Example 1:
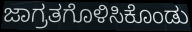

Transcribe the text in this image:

ಜಾಗ್ರತಗೊಳಿಸಿಕೊಂಡು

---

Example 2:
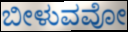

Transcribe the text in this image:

ಬೀಳುವವೋ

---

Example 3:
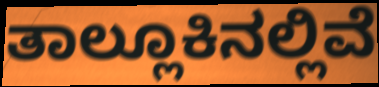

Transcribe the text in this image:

ತಾಲ್ಲೂಕಿನಲ್ಲಿವೆ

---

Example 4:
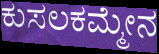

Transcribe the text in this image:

ಕುಸಲಕಮ್ಮೇನ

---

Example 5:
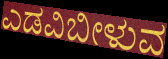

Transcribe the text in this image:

ಎಡವಿಬೀಳುವ